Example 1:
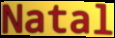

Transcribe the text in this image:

Natal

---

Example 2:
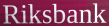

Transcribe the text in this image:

Riksbank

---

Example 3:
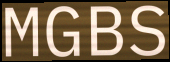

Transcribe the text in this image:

MGBS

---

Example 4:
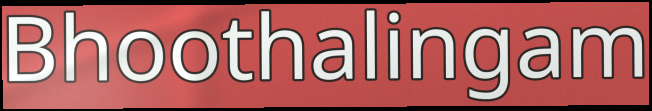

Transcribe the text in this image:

Bhoothalingam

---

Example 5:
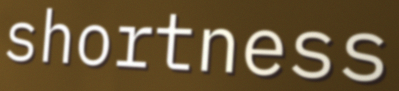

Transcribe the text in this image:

shortness